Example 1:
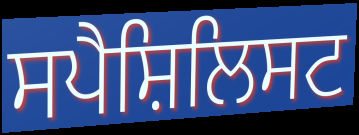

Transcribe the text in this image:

ਸਪੈਸ਼ਿਲਿਸਟ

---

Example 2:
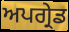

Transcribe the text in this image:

ਅਪਗ੍ਰੇਡ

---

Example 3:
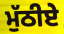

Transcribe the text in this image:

ਮੁੱਠੀਏ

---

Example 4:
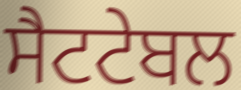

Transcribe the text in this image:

ਸੈਟਟੇਬਲ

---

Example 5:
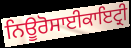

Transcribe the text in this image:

ਨਿਊਰੋਸਾਈਕਾਇਟ੍ਰੀ